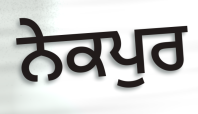
ਨੇਕਪੁਰ